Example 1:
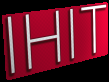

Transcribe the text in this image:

IHIT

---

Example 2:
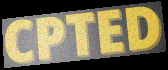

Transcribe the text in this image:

CPTED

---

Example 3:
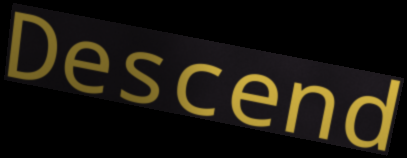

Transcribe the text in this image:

Descend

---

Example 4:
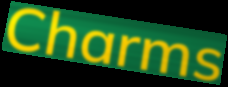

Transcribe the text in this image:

Charms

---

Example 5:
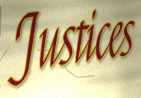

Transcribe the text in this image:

Justices